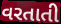
વરતાતી